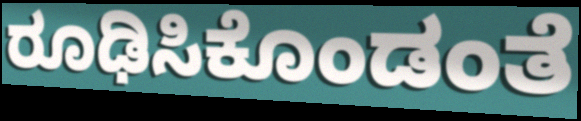
ರೂಢಿಸಿಕೊಂಡಂತೆ